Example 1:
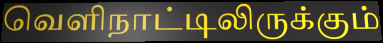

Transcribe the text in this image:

வெளிநாட்டிலிருக்கும்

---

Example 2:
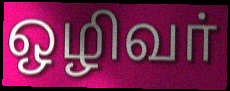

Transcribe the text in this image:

ஒழிவர்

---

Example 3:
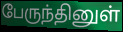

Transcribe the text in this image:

பேருந்தினுள்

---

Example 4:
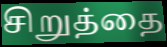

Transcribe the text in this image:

சிறுத்தை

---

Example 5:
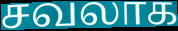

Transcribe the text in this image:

சவலாக